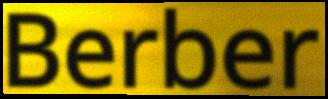
Berber